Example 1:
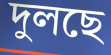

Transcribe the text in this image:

দুলছে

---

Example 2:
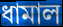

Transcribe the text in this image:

ধামাল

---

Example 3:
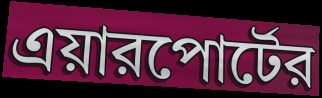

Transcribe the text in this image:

এয়ারপোর্টের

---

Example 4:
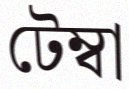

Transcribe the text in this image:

টেম্বা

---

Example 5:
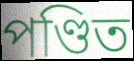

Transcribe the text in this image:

পণ্ডিত